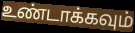
உண்டாக்கவும்